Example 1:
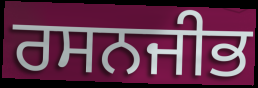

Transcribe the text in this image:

ਰਸਨਜੀਭ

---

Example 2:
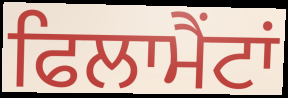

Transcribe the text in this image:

ਫਿਲਾਮੈਂਟਾਂ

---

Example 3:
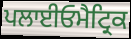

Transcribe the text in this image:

ਪਲਾਈਓਮੈਟ੍ਰਿਕ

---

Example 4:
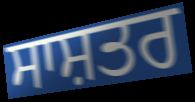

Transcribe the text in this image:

ਸਾਸ਼ਤਰ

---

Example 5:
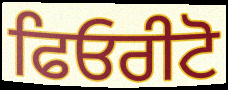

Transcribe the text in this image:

ਫਿਓਰੀਟੋ